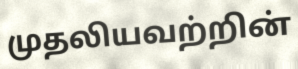
முதலியவற்றின்